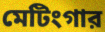
মেটিংগার